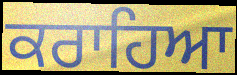
ਕਰਾਹਿਆ